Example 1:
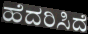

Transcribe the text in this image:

ಹೆದರಿಸಿದೆ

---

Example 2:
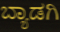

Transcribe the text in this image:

ಬ್ಯಾಡಗಿ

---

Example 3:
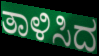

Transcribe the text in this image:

ತಾಳಿಸಿದ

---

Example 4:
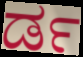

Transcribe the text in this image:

ರ್ಡ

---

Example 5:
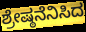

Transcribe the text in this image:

ಶ್ರೇಷ್ಠನೆನಿಸಿದ